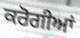
ਕਰੋਗੀਆਂ